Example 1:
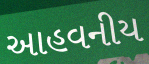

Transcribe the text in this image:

આહવનીય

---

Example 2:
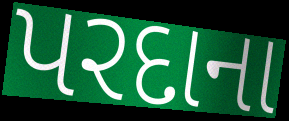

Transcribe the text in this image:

પરદાના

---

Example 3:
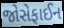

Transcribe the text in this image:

જોસેફાઈન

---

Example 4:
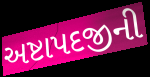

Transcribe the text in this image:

અષ્ટાપદજીની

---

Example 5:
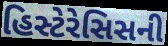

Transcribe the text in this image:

હિસ્ટેરેસિસની